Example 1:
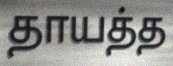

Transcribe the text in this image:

தாயத்த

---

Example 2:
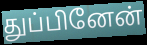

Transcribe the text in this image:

துப்பினேன்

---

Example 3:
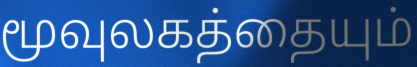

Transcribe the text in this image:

மூவுலகத்தையும்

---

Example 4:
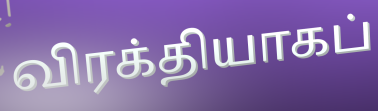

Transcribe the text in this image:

விரக்தியாகப்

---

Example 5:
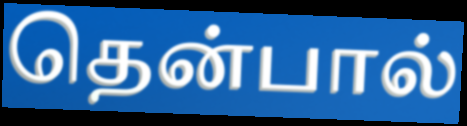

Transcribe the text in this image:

தென்பால்